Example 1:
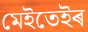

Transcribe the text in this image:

মেইতেইৰ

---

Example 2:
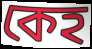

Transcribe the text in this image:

কেহ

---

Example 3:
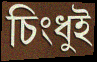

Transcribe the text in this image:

চিংধুই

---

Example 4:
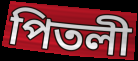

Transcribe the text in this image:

পিতলী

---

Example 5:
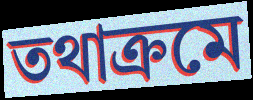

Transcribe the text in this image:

তথাক্ৰমে